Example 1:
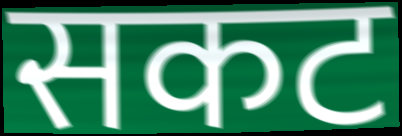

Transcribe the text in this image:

सकट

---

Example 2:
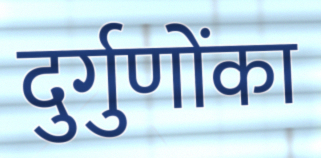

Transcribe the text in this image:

दुर्गुणोंका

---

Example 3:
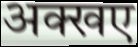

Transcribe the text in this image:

अक्खए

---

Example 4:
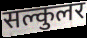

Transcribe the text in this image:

सल्कुलर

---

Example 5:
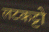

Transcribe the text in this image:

लटकट्टो